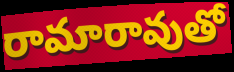
రామారావుతో